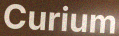
Curium